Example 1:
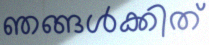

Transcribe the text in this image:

ഞങ്ങൾക്കിത്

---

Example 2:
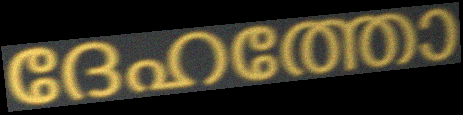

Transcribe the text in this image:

ദേഹത്തോ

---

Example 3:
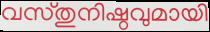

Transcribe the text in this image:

വസ്തുനിഷ്ഠവുമായി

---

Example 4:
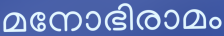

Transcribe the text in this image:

മനോഭിരാമം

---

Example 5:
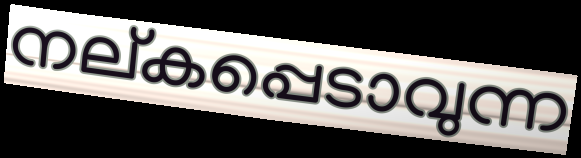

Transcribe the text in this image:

നല്കപ്പെടാവുന്ന